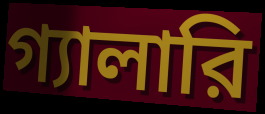
গ্যালারি